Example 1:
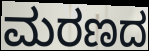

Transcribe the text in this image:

ಮರಣದ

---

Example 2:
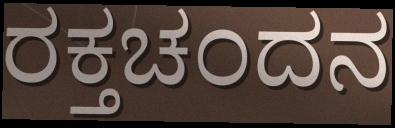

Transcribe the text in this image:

ರಕ್ತಚಂದನ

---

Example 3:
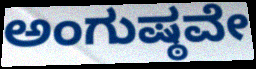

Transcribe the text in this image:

ಅಂಗುಷ್ಠವೇ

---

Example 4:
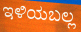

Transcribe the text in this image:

ಇಳಿಯಬಲ್ಲ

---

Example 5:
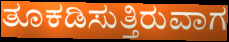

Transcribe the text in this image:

ತೂಕಡಿಸುತ್ತಿರುವಾಗ